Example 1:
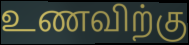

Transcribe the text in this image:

உணவிற்கு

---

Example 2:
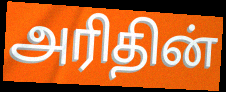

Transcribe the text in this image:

அரிதின்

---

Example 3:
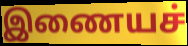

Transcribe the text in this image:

இணையச்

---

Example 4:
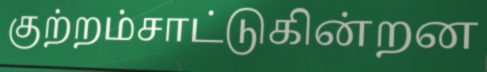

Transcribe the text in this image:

குற்றம்சாட்டுகின்றன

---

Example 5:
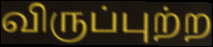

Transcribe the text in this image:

விருப்புற்ற